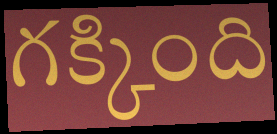
గక్కింది